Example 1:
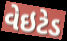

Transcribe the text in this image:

વેઇટેડ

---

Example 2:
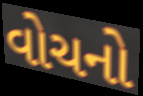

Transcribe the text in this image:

વોચનો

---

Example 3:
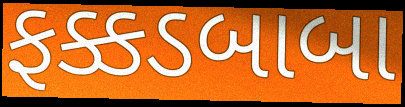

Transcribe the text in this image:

ફક્કડબાબા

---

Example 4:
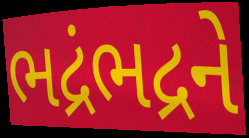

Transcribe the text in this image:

ભદ્રંભદ્રને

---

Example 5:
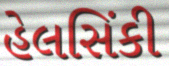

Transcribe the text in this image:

હેલસિંકી